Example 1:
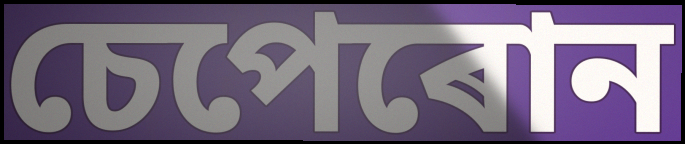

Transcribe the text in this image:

চেপেৰোন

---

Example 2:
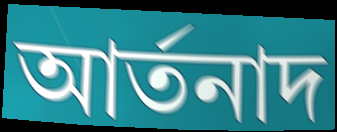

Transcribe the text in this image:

আৰ্তনাদ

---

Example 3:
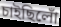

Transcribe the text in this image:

চাইছিলোঁ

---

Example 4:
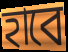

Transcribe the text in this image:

হাবে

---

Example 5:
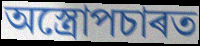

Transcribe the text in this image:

অস্ত্ৰোপচাৰত